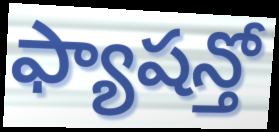
ఫ్యాషన్తో